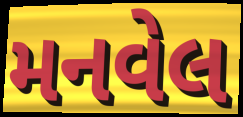
મનવેલ